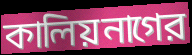
কালিয়নাগের